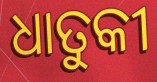
ଧାତୁକୀ